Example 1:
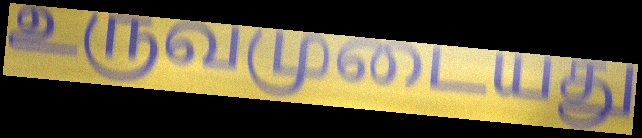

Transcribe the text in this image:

உருவமுடையது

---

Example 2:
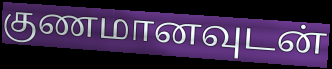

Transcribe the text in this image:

குணமானவுடன்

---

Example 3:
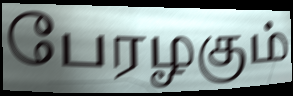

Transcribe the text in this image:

பேரழகும்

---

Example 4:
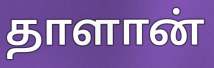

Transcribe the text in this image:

தாளான்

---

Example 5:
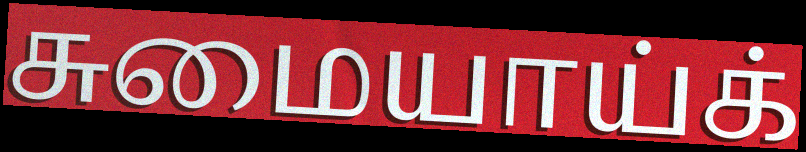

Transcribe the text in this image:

சுமையாய்க்